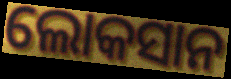
ଲୋକସାନ